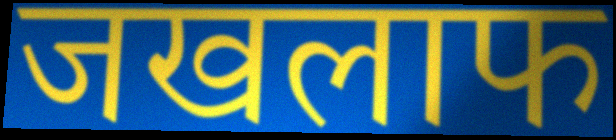
जखलाफ